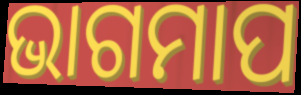
ଭାଗମାପ